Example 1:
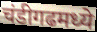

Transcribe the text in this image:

चंडीगढमध्ये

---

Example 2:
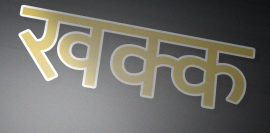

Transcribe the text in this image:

खक्क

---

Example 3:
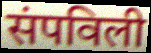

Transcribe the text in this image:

संपविली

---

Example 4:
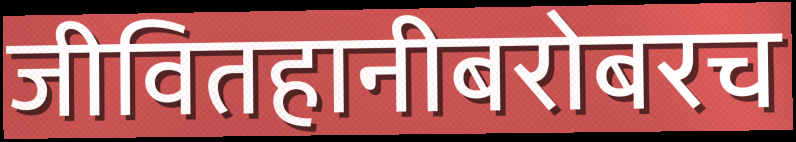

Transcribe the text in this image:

जीवितहानीबरोबरच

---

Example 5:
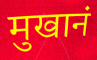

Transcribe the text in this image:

मुखानं